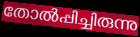
തോൽപ്പിച്ചിരുന്നു